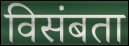
विसंबता